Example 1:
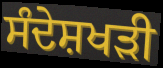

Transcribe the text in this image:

ਸੰਦੇਸ਼ਖੜੀ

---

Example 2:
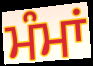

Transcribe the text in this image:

ਮੰਮਾਂ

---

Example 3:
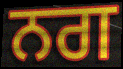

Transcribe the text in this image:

ਨਗ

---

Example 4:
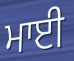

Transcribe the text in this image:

ਮਾਈ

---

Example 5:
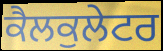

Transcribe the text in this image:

ਕੈਲਕੁਲੇਟਰ